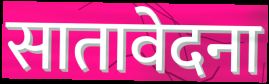
सातावेदना